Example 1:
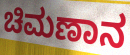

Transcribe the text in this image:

ಚಿಮಣಾನ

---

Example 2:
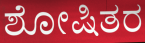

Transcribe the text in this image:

ಶೋಷಿತರ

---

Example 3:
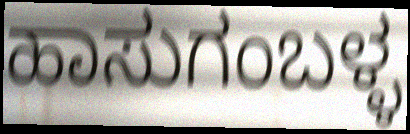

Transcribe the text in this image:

ಹಾಸುಗಂಬಳ್ಳ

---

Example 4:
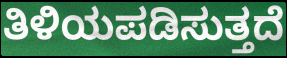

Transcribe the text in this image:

ತಿಳಿಯಪಡಿಸುತ್ತದೆ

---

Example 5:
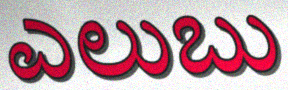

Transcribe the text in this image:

ಎಲುಬು